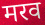
मरव